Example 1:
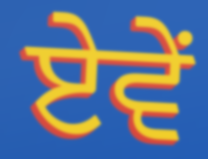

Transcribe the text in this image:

ਏਵੇਂ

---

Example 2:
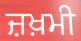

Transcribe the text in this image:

ਜ਼ਖ਼ਮੀ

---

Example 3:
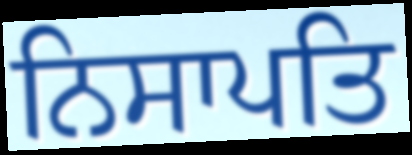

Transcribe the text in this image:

ਨਿਸਾਪਤਿ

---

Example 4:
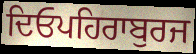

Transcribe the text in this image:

ਦਿਓਪਹਿਰਾਬੁਰਜ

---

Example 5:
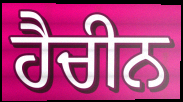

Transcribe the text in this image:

ਹੈਚੀਨ